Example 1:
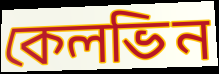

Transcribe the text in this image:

কেলভিন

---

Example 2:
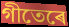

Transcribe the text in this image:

গীতেৰে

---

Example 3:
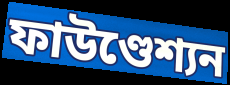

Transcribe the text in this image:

ফাউণ্ডেশ্যন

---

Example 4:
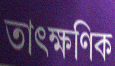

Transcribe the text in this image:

তাৎক্ষণিক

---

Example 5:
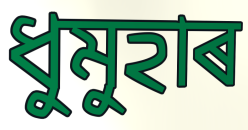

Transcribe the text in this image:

ধুমুহাৰ